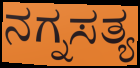
ನಗ್ನಸತ್ಯ